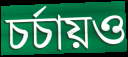
চর্চায়ও